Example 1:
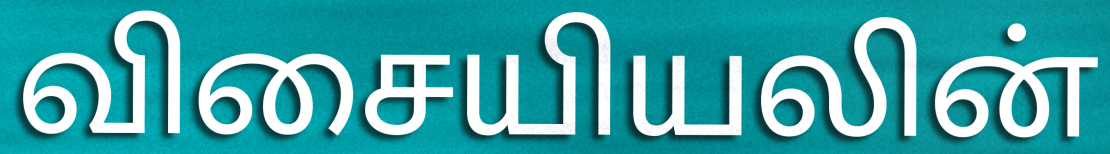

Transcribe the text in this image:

விசையியலின்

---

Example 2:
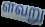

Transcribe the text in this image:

ளவறு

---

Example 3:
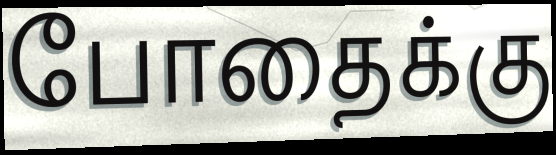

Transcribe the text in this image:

போதைக்கு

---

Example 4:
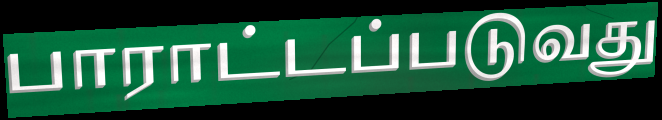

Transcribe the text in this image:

பாராட்டப்படுவது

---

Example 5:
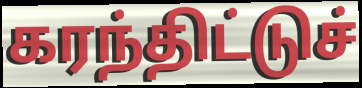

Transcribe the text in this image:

கரந்திட்டுச்